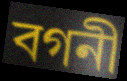
বগনী